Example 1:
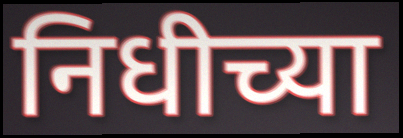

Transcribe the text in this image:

निधीच्या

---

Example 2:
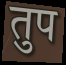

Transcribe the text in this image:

तुप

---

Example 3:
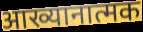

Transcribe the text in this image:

आख्यानात्मक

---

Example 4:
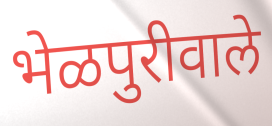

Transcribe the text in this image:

भेळपुरीवाले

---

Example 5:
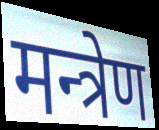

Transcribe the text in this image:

मन्त्रेण